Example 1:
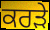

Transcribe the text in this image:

ਕਰੜੇ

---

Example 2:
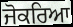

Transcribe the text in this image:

ਜੋਕਰਿਆ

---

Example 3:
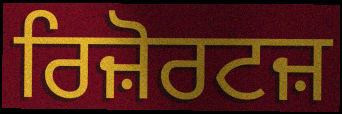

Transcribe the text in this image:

ਰਿਜ਼ੋਰਟਜ਼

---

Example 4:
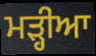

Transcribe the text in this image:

ਮੜ੍ਹੀਆ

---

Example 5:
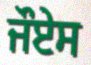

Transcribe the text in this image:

ਜੌਏਸ